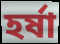
হর্ষা